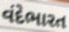
વંદેભારત